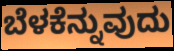
ಬೆಳಕೆನ್ನುವುದು